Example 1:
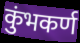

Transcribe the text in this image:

कुंभकर्ण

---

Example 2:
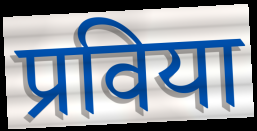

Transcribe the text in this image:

प्रविया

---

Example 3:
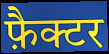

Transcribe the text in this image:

फ़ैक्टर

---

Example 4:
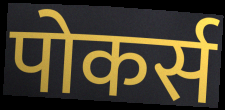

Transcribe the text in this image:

पोकर्स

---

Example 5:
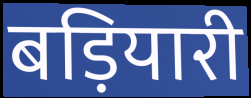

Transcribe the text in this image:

बड़ियारी